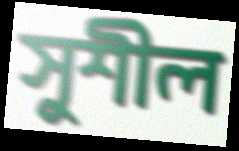
সুশীল